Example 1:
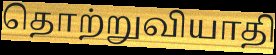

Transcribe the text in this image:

தொற்றுவியாதி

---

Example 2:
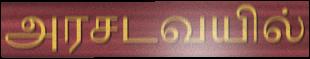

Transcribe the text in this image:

அரசடவயில்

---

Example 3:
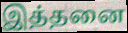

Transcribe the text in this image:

இத்தனை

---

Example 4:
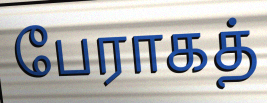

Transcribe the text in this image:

பேராகத்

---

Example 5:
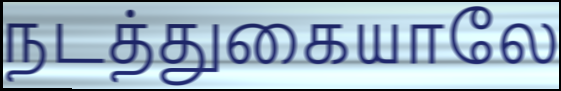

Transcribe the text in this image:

நடத்துகையாலே